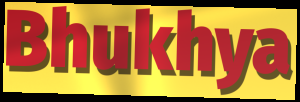
Bhukhya